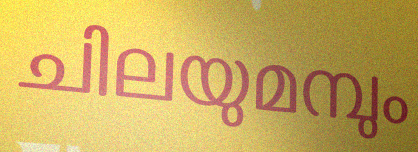
ചിലയുമമ്പും